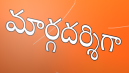
మార్గదర్శిగా